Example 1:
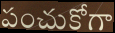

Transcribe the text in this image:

పంచుకోగా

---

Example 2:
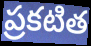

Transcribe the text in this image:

ప్రకటిత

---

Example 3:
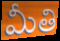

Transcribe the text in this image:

మీతి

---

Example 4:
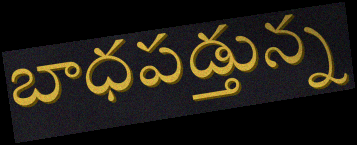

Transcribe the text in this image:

బాధపడ్తున్న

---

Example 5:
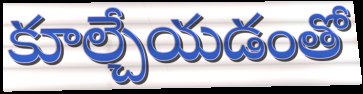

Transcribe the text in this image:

కూల్చేయడంతో